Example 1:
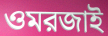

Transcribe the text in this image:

ওমরজাই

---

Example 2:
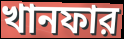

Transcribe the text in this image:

খানফার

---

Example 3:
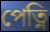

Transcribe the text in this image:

পেত্নি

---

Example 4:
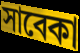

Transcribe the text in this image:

সাবেকা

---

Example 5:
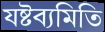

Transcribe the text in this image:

যষ্টব্যমিতি